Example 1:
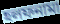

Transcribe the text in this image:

হলফনামা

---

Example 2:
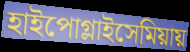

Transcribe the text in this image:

হাইপোগ্লাইসেমিয়ায়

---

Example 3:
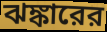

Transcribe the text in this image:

ঝঙ্কারের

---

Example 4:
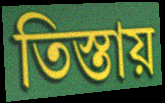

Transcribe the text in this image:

তিস্তায়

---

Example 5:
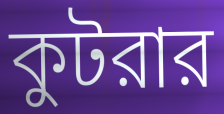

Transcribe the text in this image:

কুটরার